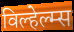
विल्हेल्म्स